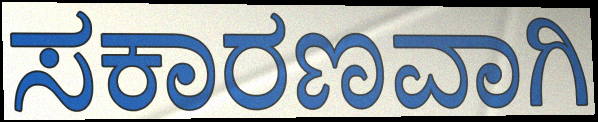
ಸಕಾರಣವಾಗಿ